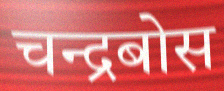
चन्द्रबोस